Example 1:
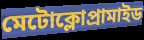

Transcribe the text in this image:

মেটোক্লোপ্রামাইড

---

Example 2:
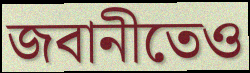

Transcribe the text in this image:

জবানীতেও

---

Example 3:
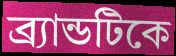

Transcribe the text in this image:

ব্র্যান্ডটিকে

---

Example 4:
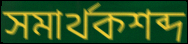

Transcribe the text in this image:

সমার্থকশব্দ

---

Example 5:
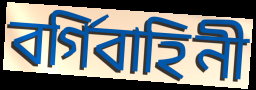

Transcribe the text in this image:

বর্গিবাহিনী